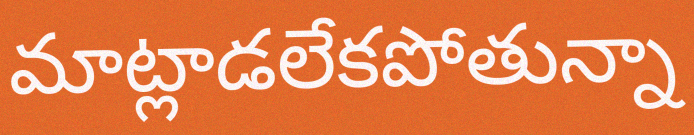
మాట్లాడలేకపోతున్నా